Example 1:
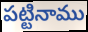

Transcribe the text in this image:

పట్టినాము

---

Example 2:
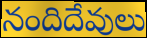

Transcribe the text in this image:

నందిదేవులు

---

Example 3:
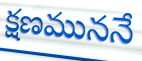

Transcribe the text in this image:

క్షణముననే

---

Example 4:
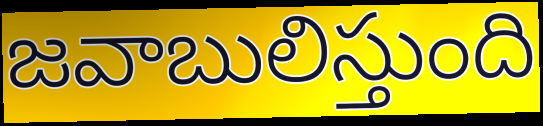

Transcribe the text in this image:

జవాబులిస్తుంది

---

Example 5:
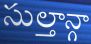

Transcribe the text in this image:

సుల్తాన్గా